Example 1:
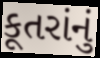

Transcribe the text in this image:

કૂતરાંનું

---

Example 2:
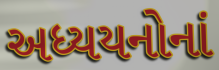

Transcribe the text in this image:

અધ્યયનોનાં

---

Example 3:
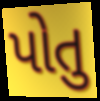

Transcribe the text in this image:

પોતુ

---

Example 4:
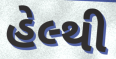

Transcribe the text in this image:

હેલ્થી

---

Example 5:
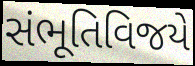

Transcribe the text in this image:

સંભૂતિવિજયે